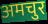
अमचुर